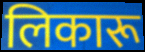
लिकारू